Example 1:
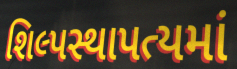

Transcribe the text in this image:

શિલ્પસ્થાપત્યમાં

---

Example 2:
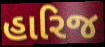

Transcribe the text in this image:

હારિજ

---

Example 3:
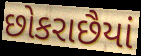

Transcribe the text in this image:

છોકરાછૈયાં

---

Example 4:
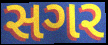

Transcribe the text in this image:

સગર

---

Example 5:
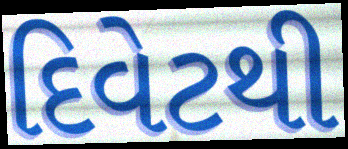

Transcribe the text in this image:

દિવેટથી